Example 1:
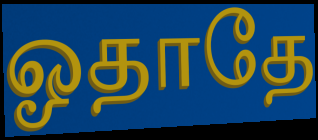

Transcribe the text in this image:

ஓதாதே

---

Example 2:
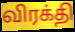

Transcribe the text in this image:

விரக்தி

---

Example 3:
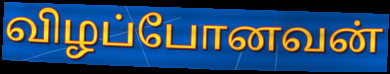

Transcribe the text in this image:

விழப்போனவன்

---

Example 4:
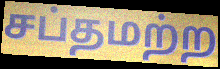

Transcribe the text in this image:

சப்தமற்ற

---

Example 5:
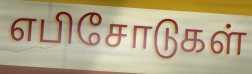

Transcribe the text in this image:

எபிசோடுகள்